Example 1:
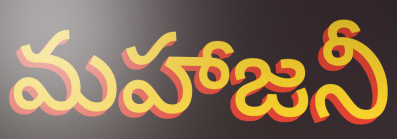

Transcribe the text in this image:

మహాజనీ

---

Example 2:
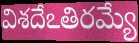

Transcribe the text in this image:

విశదేఽతిరమ్యే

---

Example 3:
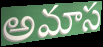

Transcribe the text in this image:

అమాస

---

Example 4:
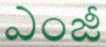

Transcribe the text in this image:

ఎంజీ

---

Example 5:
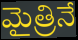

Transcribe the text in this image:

మైత్రినే